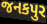
જનકપુર